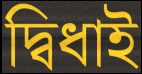
দ্বিধাই